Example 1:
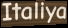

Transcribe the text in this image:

Italiya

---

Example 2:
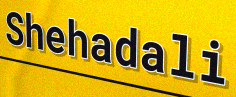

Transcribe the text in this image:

Shehadali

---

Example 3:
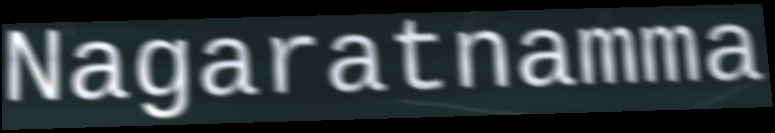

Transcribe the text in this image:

Nagaratnamma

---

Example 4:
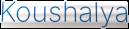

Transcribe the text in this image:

Koushalya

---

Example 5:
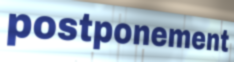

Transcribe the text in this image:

postponement